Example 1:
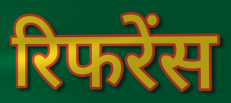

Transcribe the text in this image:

रिफरेंस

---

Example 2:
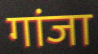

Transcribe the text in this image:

गांजा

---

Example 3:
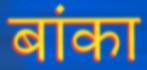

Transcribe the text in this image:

बांका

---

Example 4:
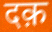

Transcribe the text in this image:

दक़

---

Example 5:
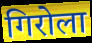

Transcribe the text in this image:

गिरोला